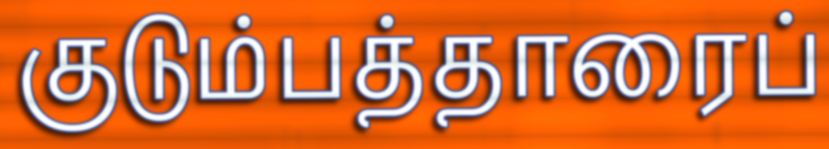
குடும்பத்தாரைப்